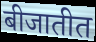
बीजातीत